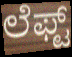
ಲೆಫ್ಟ್